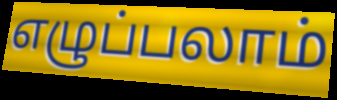
எழுப்பலாம்